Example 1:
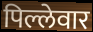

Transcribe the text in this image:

पिल्लेवार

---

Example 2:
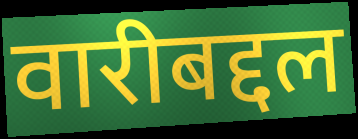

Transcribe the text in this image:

वारीबद्दल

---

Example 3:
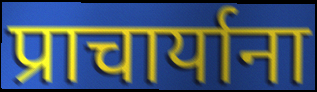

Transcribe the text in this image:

प्राचार्याना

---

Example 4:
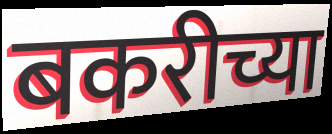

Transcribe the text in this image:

बकरीच्या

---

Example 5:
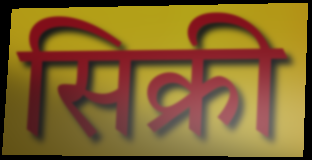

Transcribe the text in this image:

सिक्री